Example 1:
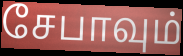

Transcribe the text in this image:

சேபாவும்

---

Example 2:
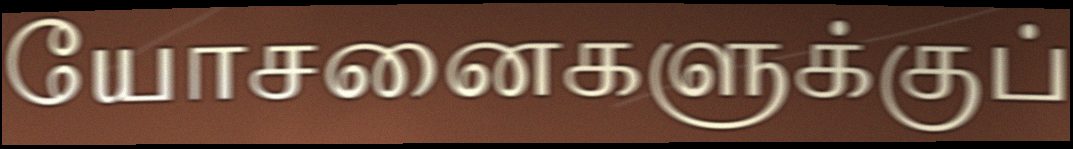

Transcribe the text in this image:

யோசனைகளுக்குப்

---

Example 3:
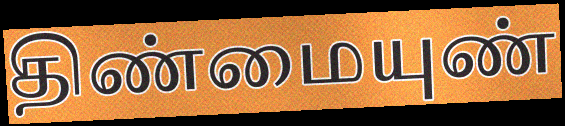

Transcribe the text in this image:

திண்மையுண்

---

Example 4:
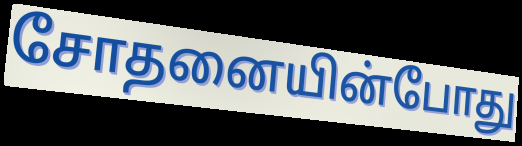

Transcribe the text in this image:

சோதனையின்போது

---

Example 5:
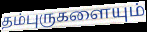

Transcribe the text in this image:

தம்புருகளையும்